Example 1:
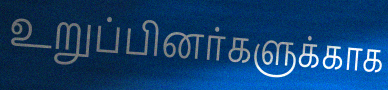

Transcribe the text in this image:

உறுப்பினர்களுக்காக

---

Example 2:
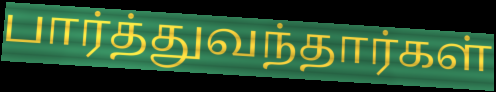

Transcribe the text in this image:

பார்த்துவந்தார்கள்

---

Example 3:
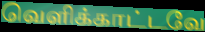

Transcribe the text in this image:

வெளிக்காட்டவே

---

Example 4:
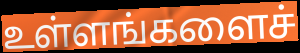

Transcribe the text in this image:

உள்ளங்களைச்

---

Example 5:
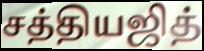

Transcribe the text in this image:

சத்தியஜித்